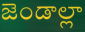
జెండాల్లా